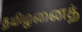
தமிழனைத்